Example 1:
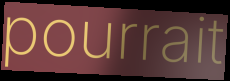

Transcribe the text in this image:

pourrait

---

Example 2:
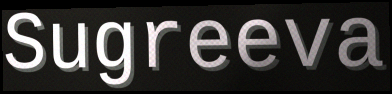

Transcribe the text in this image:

Sugreeva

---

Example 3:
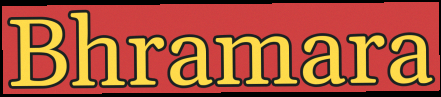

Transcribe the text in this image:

Bhramara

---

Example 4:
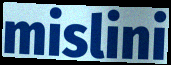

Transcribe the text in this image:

mislini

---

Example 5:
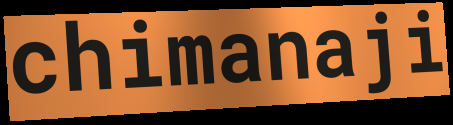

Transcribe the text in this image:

chimanaji